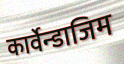
कार्वेन्डाजिम